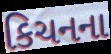
કિચનના